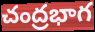
చంద్రభాగ